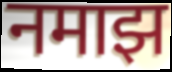
नमाझ